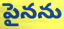
పైనను